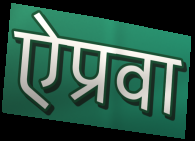
ऐप्रवा